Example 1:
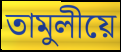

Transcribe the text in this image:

তামুলীয়ে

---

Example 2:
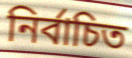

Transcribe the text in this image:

নিৰ্বাচিত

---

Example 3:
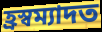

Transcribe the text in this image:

হ্ৰস্বম্যাদত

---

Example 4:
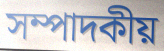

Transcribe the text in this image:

সম্পাদকীয়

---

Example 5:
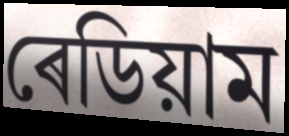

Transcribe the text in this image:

ৰেডিয়াম